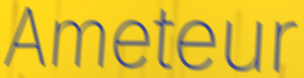
Ameteur